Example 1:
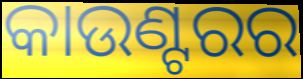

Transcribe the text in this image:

କାଉଣ୍ଟରର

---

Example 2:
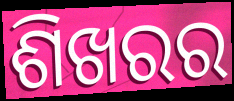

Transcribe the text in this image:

ଶିଖରର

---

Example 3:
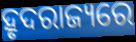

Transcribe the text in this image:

ହୃଦରାଜ୍ୟରେ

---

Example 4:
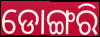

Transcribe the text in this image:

ଡୋଙ୍ଗରି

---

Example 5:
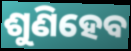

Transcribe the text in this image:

ଶୁଣିହେବ